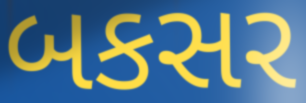
બકસર